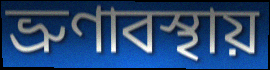
ভ্রুণাবস্থায়